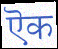
ऎक